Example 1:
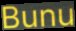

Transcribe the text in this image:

Bunu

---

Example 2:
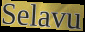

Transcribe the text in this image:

Selavu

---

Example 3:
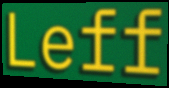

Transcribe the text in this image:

Leff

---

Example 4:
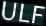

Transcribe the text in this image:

ULF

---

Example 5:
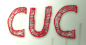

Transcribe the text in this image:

CUC